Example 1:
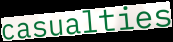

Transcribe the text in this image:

casualties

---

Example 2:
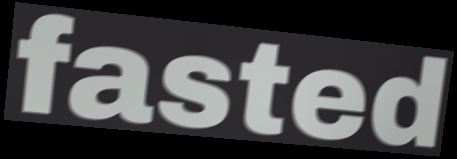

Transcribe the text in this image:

fasted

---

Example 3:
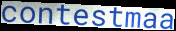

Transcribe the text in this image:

contestmaa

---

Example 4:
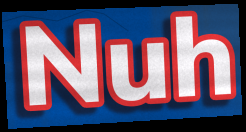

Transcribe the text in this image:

Nuh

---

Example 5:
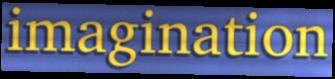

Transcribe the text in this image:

imagination